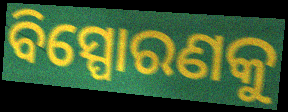
ବିସ୍ପୋରଣକୁ